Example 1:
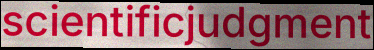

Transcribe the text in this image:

scientificjudgment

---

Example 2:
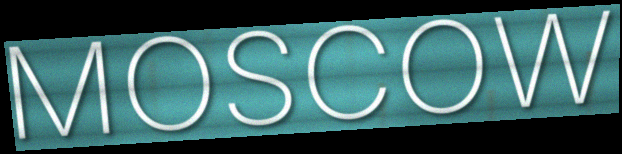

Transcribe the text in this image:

MOSCOW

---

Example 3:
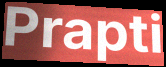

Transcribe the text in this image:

Prapti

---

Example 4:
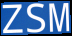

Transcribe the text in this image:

ZSM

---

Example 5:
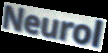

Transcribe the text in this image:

Neurol